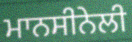
ਮਾਨਸੀਨੇਲੀ